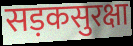
सड़कसुरक्षा